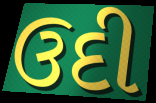
ઉદી